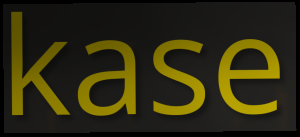
kase